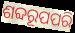
ଶବ୍ଦରୂପପରି